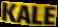
KALE